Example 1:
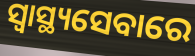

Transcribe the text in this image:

ସ୍ୱାସ୍ଥ୍ୟସେବାରେ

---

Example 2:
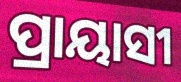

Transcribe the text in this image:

ପ୍ରାୟାସୀ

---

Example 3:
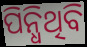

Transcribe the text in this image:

ପିନ୍ଧିଥିବି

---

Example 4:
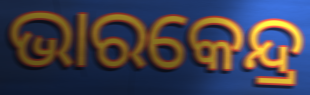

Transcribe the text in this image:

ଭାରକେନ୍ଦ୍ର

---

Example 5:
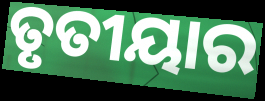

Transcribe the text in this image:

ତୃତୀୟାର